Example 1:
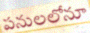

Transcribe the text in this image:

పనులలోనూ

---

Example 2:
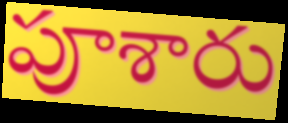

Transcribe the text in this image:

పూశారు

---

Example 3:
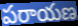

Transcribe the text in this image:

పరాయణ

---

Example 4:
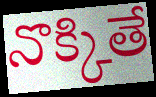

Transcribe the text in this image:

నొక్కితే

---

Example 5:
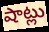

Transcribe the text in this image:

షాట్లు